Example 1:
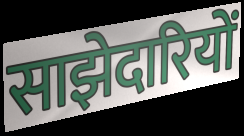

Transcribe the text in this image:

साझेदारियों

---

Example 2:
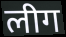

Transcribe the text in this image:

लीग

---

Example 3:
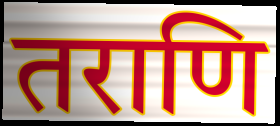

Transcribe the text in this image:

तराणि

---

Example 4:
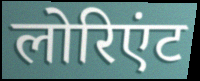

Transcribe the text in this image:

लोरिएंट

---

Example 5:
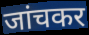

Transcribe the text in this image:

जांचकर